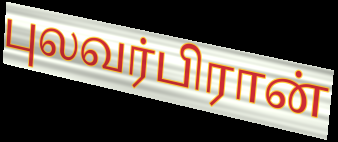
புலவர்பிரான்